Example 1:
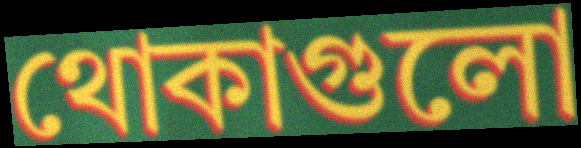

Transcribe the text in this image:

থোকাগুলো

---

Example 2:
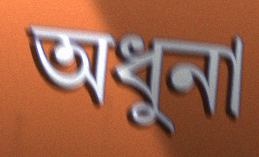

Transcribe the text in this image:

অধুনা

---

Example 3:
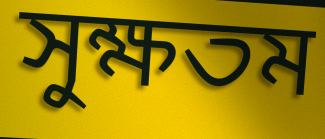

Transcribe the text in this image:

সুক্ষতম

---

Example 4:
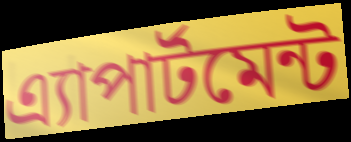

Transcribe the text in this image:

এ্যাপার্টমেন্ট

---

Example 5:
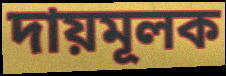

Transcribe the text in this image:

দায়মূলক